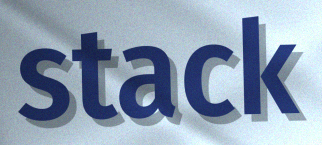
stack